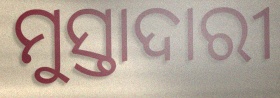
ମୁସ୍ତାଦାରୀ